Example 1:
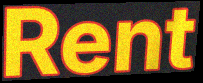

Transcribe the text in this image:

Rent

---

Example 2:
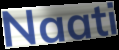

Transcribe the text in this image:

Naati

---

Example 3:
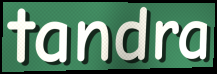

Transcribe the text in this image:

tandra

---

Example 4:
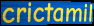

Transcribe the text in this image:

crictamil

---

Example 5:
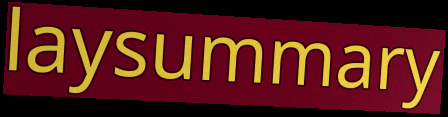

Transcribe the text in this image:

laysummary